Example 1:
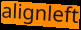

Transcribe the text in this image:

alignleft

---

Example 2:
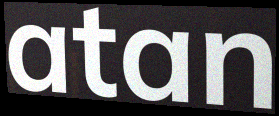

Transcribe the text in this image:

atan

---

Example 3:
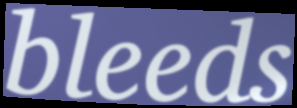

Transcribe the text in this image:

bleeds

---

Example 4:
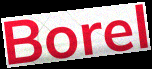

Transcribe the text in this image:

Borel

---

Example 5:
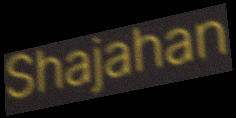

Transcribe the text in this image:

Shajahan